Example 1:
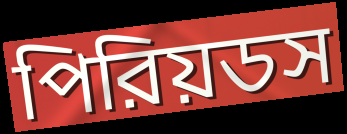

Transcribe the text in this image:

পিরিয়ডস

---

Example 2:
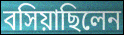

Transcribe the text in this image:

বসিয়াছিলেন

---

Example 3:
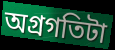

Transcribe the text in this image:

অগ্রগতিটা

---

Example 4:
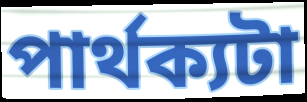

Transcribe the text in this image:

পার্থক্যটা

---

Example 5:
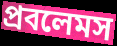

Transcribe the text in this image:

প্রবলেমস